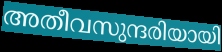
അതീവസുന്ദരിയായി